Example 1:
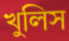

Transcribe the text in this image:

খুলিস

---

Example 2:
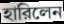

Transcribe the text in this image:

হারিলেন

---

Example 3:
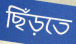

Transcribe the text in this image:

ছিঁড়তে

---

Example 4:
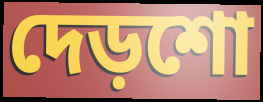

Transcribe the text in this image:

দেড়শো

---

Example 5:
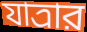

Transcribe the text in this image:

যাত্রার